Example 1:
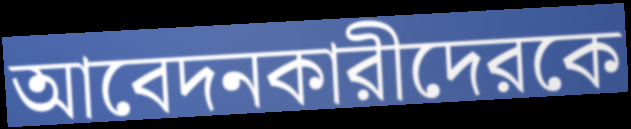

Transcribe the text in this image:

আবেদনকারীদেরকে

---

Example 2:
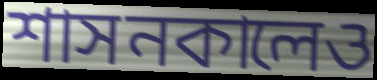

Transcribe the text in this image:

শাসনকালেও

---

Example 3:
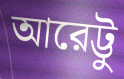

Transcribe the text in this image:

আরেট্টু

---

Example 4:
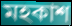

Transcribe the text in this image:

মহকাশ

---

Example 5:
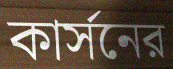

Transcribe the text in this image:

কার্সনের